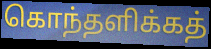
கொந்தளிக்கத்